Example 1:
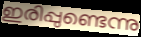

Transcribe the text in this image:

ഇരിപ്പുണ്ടെന്നു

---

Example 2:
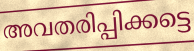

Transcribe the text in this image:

അവതരിപ്പിക്കട്ടെ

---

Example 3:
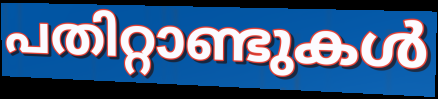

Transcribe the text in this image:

പതിറ്റാണ്ടുകൾ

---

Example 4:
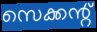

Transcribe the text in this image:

സെക്കന്റ്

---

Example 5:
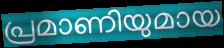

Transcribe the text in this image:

പ്രമാണിയുമായ